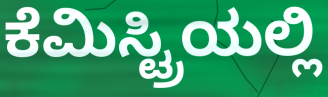
ಕೆಮಿಸ್ಟ್ರಿಯಲ್ಲಿ